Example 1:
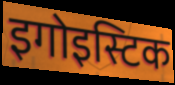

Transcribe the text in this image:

इगोइस्टिक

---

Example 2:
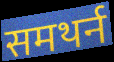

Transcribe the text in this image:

समथर्न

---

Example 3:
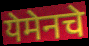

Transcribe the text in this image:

येमेनचे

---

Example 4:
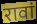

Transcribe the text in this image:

रावां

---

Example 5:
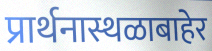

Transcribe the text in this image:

प्रार्थनास्थळाबाहेर